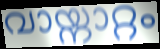
വായ്നാറ്റം